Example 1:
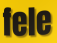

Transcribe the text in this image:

fele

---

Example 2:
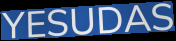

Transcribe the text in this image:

YESUDAS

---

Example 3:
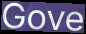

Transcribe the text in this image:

Gove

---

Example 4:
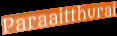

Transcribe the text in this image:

Paraaitthurai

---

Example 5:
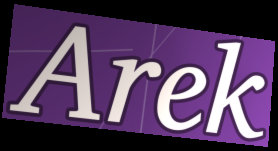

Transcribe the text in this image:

Arek